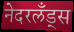
नेदरलँड्स